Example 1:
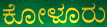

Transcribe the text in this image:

ಕೋಳೂರು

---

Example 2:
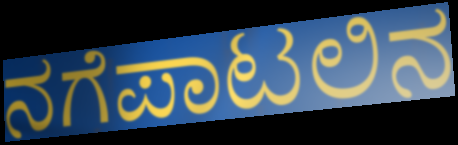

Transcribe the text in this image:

ನಗೆಪಾಟಲಿನ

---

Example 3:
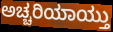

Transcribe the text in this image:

ಅಚ್ಚರಿಯಾಯ್ತು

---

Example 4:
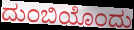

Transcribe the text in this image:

ದುಂಬಿಯೊಂದು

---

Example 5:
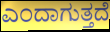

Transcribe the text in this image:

ಎಂದಾಗುತ್ತದೆ